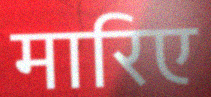
मारिए